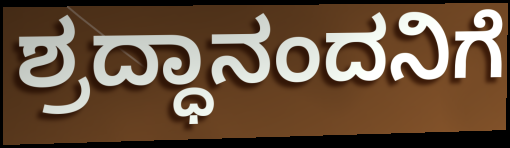
ಶ್ರದ್ಧಾನಂದನಿಗೆ